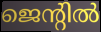
ജെന്റിൽ